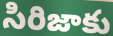
సిరిజాకు